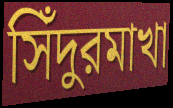
সিঁদুরমাখা